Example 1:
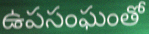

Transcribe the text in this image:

ఉపసంఘంతో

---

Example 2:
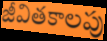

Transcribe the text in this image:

జీవితకాలపు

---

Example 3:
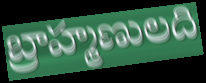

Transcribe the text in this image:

బ్రాహ్మణులది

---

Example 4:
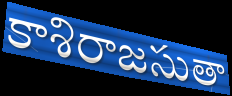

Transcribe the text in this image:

కాశిరాజసుతా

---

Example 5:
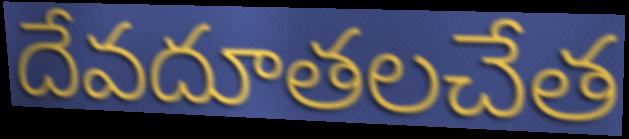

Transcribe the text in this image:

దేవదూతలచేత